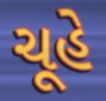
ચૂહે